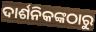
ଦାର୍ଶନିକଙ୍କଠାରୁ